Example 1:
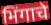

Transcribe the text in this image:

भिंगाचे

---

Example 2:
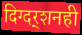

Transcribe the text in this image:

दिग्दर्शनही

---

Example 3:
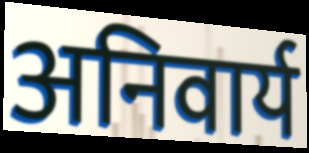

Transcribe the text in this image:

अनिवार्य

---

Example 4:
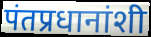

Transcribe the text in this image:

पंतप्रधानांशी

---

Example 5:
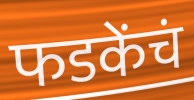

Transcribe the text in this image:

फडकेंचं